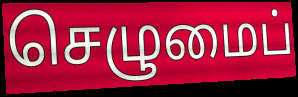
செழுமைப்